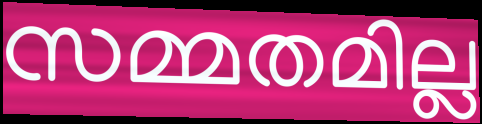
സമ്മതമില്ല